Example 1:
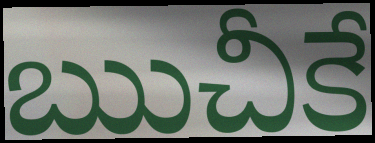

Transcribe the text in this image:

ఋచీకే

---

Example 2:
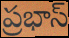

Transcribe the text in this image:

ప్రభాస్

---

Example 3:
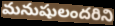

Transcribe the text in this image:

మనుషులందరిని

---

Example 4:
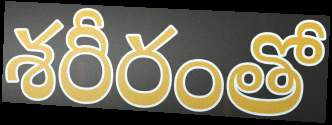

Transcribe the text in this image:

శరీరంతో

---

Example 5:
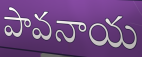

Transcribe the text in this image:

పావనాయ